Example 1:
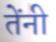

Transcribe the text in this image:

तेंनी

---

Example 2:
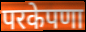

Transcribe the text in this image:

परकेपणा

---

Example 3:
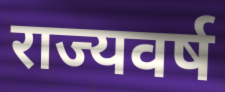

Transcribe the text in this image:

राज्यवर्ष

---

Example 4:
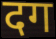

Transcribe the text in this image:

दग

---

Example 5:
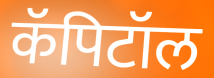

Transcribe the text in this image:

कॅपिटॉल